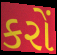
કરોં